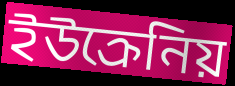
ইউক্রেনিয়